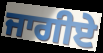
ਜਾਗੀਏ